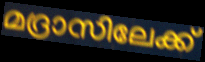
മദ്രാസിലേക്ക്